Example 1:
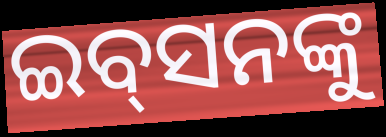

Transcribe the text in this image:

ଇବ୍‌ସନଙ୍କୁ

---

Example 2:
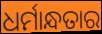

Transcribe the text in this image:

ଧର୍ମାନ୍ଧତାର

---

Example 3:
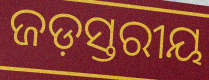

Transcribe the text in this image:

ଜଡ଼ସ୍ତରୀୟ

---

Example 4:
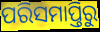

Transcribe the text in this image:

ପରିସମାପ୍ତିରୁ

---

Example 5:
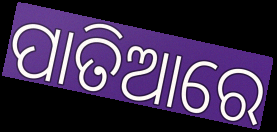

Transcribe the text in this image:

ପାତିଆରେ